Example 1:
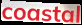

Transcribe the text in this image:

coastal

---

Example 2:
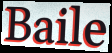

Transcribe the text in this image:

Baile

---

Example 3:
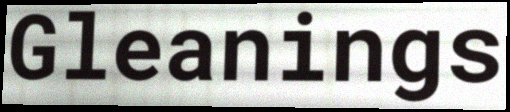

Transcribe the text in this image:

Gleanings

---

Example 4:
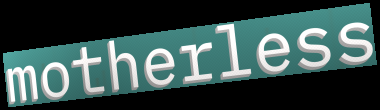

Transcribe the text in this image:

motherless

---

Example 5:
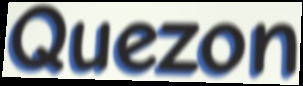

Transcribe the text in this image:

Quezon